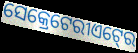
ସେକ୍ରେଟେରୀଏଟ୍‍ରେ